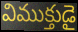
విముక్తుడై